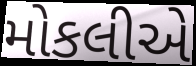
મોકલીએ